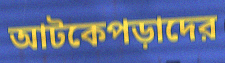
আটকেপড়াদের